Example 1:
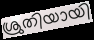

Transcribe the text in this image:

ശ്രുതിയായി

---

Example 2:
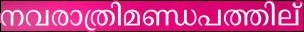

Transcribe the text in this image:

നവരാത്രിമണ്ഡപത്തില്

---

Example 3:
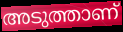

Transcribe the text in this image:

അടുത്താണ്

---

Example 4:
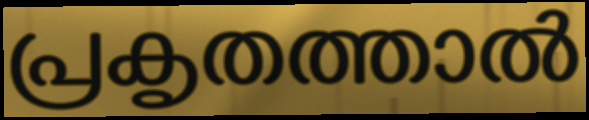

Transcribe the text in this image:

പ്രകൃതത്താൽ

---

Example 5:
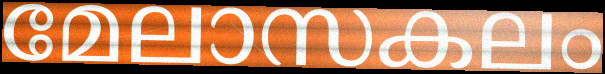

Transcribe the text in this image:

മേലാസകലം